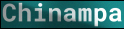
Chinampa